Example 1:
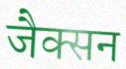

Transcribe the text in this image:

जैक्सन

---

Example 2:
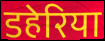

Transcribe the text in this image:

डहेरिया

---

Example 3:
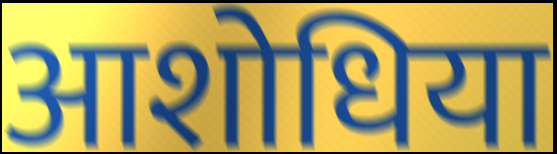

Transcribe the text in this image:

आशोधिया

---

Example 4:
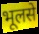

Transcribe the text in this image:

भूलसे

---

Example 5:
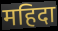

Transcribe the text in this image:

महिदा